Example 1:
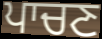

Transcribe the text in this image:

ਪਾਚਣ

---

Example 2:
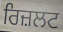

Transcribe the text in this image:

ਰਿਜ਼ਲਟ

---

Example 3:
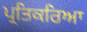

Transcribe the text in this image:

ਪ੍ਰਤਿਕਰਿਆ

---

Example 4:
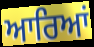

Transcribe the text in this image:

ਆਰਿਆਂ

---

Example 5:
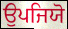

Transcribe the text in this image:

ਉਪਜਿਯੋ